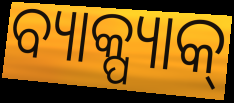
ବ୍ୟାକ୍ପ୍ୟାକ୍